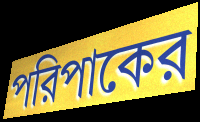
পরিপাকের